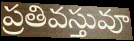
ప్రతివస్తువూ